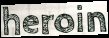
heroin